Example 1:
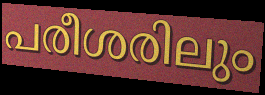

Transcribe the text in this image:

പരീശരിലും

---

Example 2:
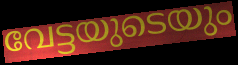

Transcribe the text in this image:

വേട്ടയുടെയും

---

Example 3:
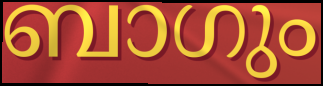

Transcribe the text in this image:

ബാഗും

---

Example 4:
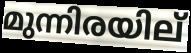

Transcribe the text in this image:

മുന്നിരയില്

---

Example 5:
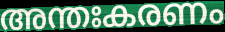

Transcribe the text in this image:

അന്തഃകരണം